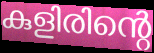
കുളിരിന്റെ